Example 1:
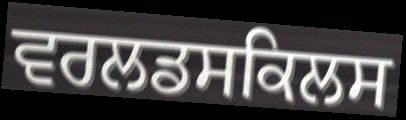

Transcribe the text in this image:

ਵਰਲਡਸਕਿਲਸ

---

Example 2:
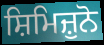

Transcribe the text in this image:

ਸ਼ਿਮਿਜ਼ੁਨੋ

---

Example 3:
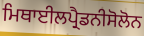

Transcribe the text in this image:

ਮਿਥਾਈਲਪ੍ਰੈਡਨੀਸੋਲੋਨ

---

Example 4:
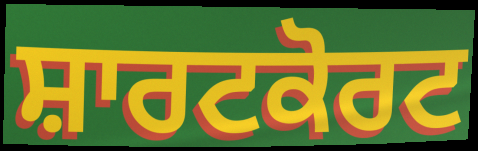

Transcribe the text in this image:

ਸ਼ਾਰਟਕੋਰਟ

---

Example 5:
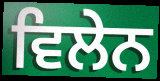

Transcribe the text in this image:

ਵਿਲੇਨ